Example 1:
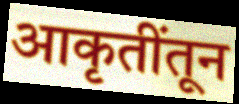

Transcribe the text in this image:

आकृतींतून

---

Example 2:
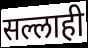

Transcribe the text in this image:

सल्लाही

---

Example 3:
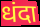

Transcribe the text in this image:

धंदा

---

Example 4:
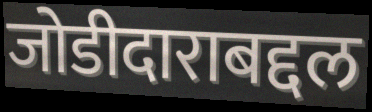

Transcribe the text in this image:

जोडीदाराबद्दल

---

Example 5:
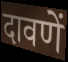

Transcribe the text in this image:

दावणें